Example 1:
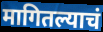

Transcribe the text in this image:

मागितल्याचं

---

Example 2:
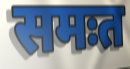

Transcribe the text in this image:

समःत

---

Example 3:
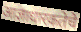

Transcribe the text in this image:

आज्ञाधारकतेचे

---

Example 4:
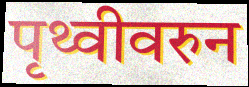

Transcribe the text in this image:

पृथ्वीवरुन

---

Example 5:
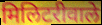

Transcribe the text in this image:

मिलिटरीवाले